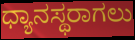
ಧ್ಯಾನಸ್ಥರಾಗಲು